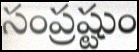
సంప్రష్టుం